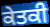
ਕੇਤਕੀ